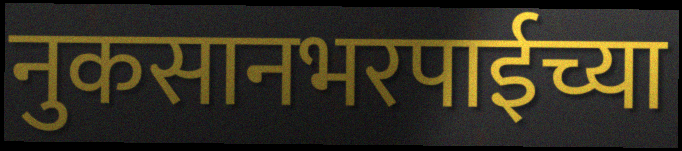
नुकसानभरपाईच्या